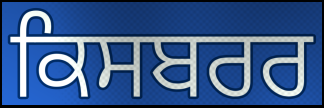
ਕਿਸਬਰਰ